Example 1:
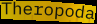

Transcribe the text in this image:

Theropoda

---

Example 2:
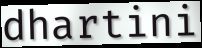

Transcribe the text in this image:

dhartini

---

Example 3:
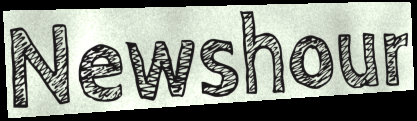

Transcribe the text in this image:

Newshour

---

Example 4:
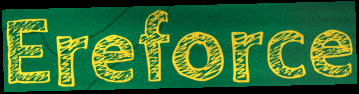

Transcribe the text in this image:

Ereforce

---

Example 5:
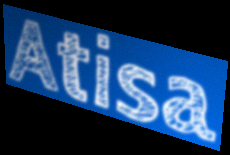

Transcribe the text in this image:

Atisa